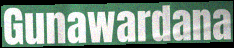
Gunawardana